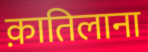
क़ातिलाना